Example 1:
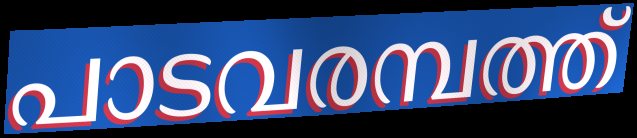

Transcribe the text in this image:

പാടവരമ്പത്ത്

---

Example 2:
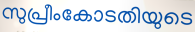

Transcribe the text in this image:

സുപ്രീംകോടതിയുടെ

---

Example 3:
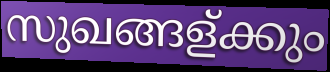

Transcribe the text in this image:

സുഖങ്ങള്ക്കും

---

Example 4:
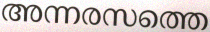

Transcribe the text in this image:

അന്നരസത്തെ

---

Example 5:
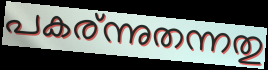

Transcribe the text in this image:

പകര്ന്നുതന്നതു